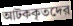
আটককৃতদের